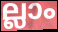
ല്ലാം